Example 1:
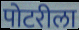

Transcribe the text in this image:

पोटरीला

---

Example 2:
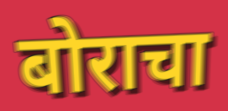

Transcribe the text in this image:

बोराचा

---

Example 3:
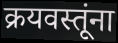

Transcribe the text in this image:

क्रयवस्तूंना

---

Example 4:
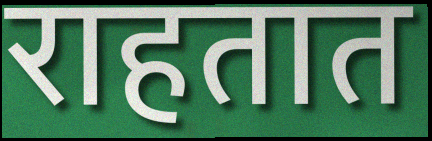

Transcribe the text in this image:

राहतात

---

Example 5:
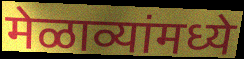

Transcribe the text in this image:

मेळाव्यांमध्ये